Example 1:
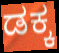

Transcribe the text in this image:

ಡಕ್ಕ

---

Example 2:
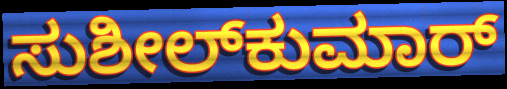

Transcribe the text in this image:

ಸುಶೀಲ್‌ಕುಮಾರ್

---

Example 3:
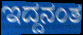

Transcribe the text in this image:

ಇದ್ದನಂತ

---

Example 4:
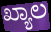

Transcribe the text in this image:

ಖ್ಯಾಲ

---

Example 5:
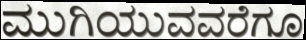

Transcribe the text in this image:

ಮುಗಿಯುವವರೆಗೂ